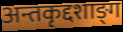
अन्तकृद्दशाङ्ग